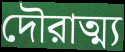
দৌরাত্ম্য